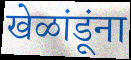
खेळांडूंना